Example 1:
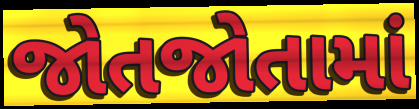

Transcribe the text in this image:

જોતજોતામાં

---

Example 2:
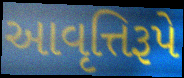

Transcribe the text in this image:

આવૃત્તિરૂપે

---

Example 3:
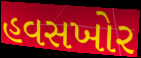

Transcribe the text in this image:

હવસખોર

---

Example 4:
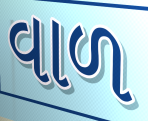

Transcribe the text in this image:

વાળ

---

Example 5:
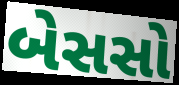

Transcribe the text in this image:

બેસસો